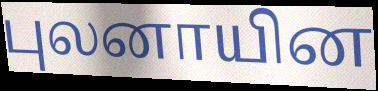
புலனாயின